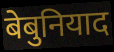
बेबुनियाद